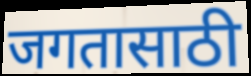
जगतासाठी